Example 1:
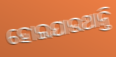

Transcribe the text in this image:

ହୋଇଯାଉଥାନ୍ତି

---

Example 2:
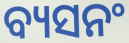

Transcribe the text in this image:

ବ୍ୟସନଂ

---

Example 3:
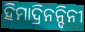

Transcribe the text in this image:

ହିମାଦ୍ରିନନ୍ଦିନୀ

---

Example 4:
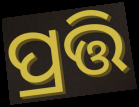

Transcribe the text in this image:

ପ୍ରତ୍ତି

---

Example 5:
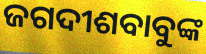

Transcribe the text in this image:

ଜଗଦୀଶବାବୁଙ୍କ